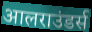
आलराउंडर्स